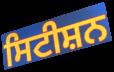
ਸਿਟੀਸ਼ਨ